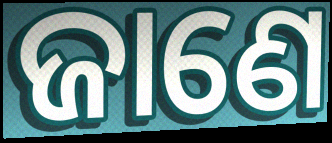
ଜାଣେ